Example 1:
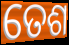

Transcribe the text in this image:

ତେଶ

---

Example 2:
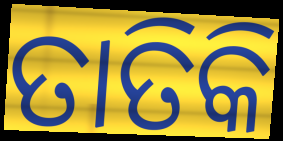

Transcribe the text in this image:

ତାତିକି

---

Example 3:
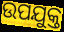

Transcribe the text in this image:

ଉପଯୁକ୍ତ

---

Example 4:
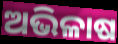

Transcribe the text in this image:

ଅଭିଳାଷ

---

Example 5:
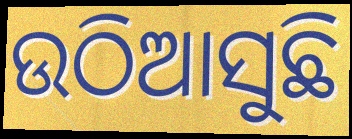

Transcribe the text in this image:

ଉଠିଆସୁଛି